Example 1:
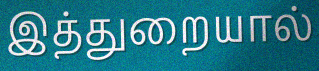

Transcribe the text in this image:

இத்துறையால்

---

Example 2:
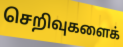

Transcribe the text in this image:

செறிவுகளைக்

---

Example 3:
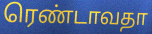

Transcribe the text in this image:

ரெண்டாவதா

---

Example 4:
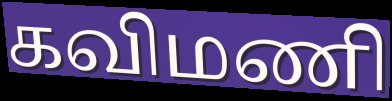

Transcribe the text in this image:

கவிமணி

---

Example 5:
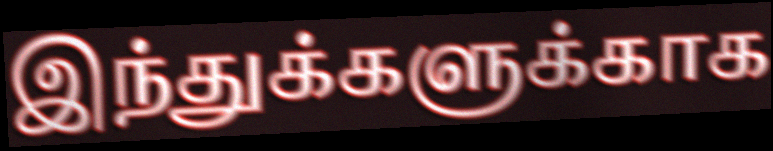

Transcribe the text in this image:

இந்துக்களுக்காக